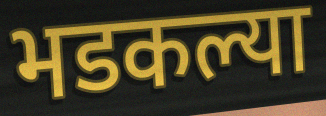
भडकल्या